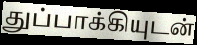
துப்பாக்கியுடன்